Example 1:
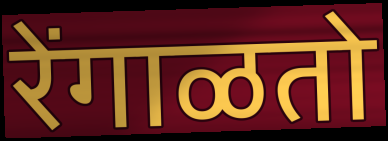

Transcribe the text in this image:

रेंगाळतो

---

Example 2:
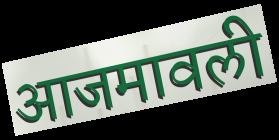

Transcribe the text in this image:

आजमावली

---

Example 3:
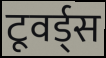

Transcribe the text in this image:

टूवर्ड्स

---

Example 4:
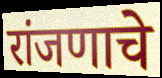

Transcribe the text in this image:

रांजणाचे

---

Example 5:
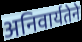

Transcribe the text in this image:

अनिवार्यतेने